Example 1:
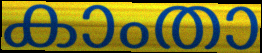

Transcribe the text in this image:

കാംതാ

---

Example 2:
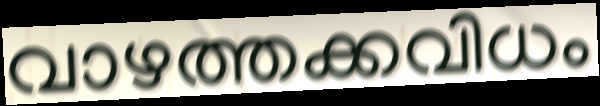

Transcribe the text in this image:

വാഴത്തക്കവിധം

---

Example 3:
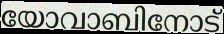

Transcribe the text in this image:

യോവാബിനോട്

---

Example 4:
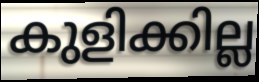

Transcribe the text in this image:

കുളിക്കില്ല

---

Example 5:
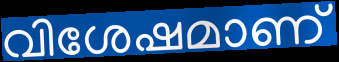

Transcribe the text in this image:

വിശേഷമാണ്